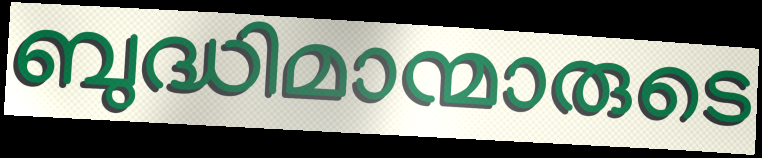
ബുദ്ധിമാന്മാരുടെ